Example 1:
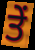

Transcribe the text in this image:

ਤੇੰ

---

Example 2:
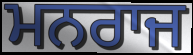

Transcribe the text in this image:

ਮਨਰਾਜ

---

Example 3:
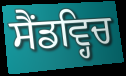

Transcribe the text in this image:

ਸੈਂਡਵ੍ਹਿਚ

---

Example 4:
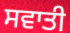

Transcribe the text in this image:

ਸਵਾਤੀ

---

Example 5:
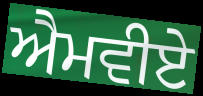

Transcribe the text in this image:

ਐਮਵੀਏ